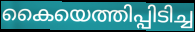
കൈയെത്തിപ്പിടിച്ച